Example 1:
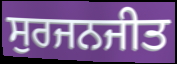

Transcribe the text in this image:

ਸੁਰਜਨਜੀਤ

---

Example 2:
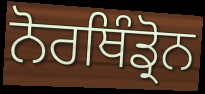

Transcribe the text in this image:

ਨੋਰਥਿੰਡ੍ਰੋਨ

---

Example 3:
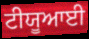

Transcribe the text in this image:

ਟੀਯੂਆਈ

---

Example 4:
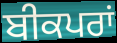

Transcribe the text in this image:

ਬੀਕਪਰਾਂ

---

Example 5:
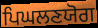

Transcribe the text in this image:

ਪਿਘਲਣਯੋਗ